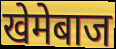
खेमेबाज